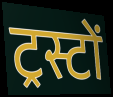
ट्रस्टों